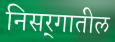
निसर्गातील